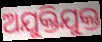
ଅଯୁକ୍ତିଯୁକ୍ତ